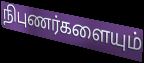
நிபுணர்களையும்